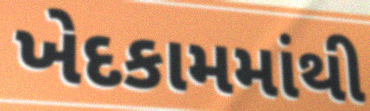
ખેદકામમાંથી